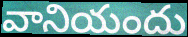
వానియందు